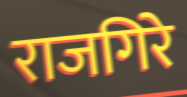
राजगिरे